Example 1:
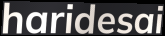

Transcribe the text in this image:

haridesai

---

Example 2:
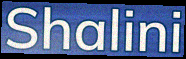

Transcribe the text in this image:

Shalini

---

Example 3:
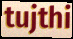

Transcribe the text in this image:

tujthi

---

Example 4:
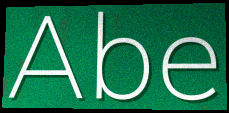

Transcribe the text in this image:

Abe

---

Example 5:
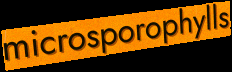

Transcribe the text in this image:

microsporophylls